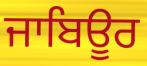
ਜਾਬਿਊਰ